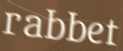
rabbet